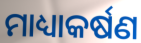
ମାଧ୍ୟାକର୍ଷଣ